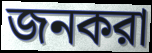
জনকরা